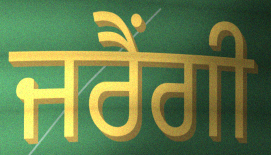
ਜਰੈਂਗੀ